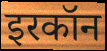
इरकॉन